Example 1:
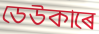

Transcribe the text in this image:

ডেউকাৰে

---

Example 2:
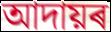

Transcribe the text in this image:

আদায়ৰ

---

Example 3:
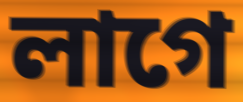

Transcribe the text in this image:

লাগে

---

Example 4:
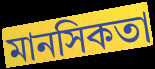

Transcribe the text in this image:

মানসিকতা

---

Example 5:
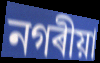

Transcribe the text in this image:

নগৰীয়া